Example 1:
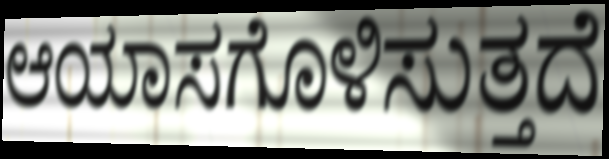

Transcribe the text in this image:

ಆಯಾಸಗೊಳಿಸುತ್ತದೆ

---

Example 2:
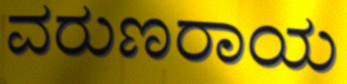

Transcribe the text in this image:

ವರುಣರಾಯ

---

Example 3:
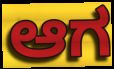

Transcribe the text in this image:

ಆಗ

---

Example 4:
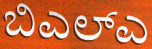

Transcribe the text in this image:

ಬಿಎಲ್ಎ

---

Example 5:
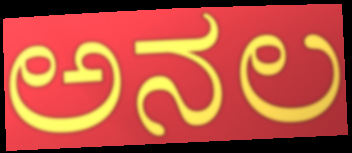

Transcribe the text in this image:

ಅನಲ